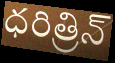
ధరిత్రిన్